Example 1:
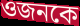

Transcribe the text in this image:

ওজনকে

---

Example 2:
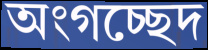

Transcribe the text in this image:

অংগচ্ছেদ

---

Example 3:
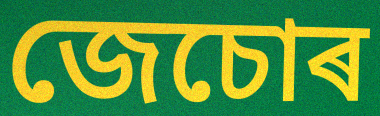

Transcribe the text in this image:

জেচোৰ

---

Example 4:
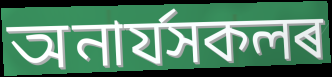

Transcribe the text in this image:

অনাৰ্যসকলৰ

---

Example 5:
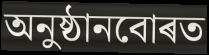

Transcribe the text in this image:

অনুষ্ঠানবোৰত